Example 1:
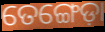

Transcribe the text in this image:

ତେଙ୍ଗେଡ଼ା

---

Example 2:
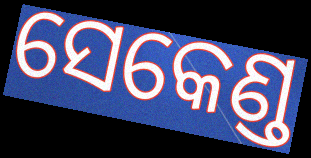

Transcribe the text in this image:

ସେକେଣ୍ଡ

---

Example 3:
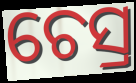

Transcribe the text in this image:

ଚେସ୍ର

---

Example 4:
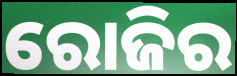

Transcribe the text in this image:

ରୋଜିର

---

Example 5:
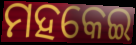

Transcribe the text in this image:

ମହକେଇ